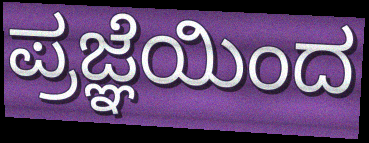
ಪ್ರಜ್ಞೆಯಿಂದ